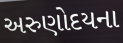
અરુણોદયના